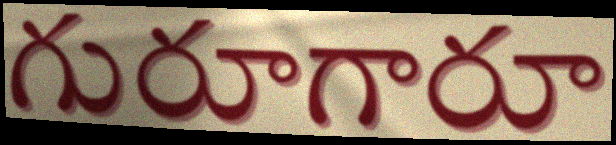
గురూగారూ